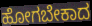
ಹೋಗಬೇಕಾದ